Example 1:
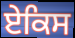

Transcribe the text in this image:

ਏਕਿਸ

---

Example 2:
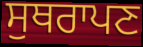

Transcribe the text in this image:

ਸੁਥਰਾਪਣ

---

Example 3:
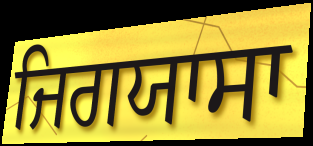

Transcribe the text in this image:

ਜਿਗਯਾਸਾ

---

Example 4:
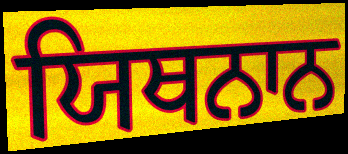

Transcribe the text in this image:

ਯਿਥਨਾਨ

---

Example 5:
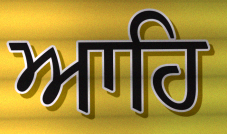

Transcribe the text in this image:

ਆਹਿ